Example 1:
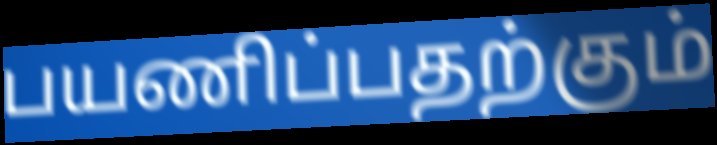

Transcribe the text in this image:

பயணிப்பதற்கும்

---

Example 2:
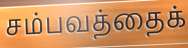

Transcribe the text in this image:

சம்பவத்தைக்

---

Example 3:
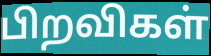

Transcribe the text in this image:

பிறவிகள்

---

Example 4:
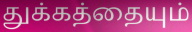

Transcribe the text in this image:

துக்கத்தையும்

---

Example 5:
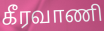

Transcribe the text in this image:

கீரவாணி